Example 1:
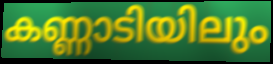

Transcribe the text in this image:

കണ്ണാടിയിലും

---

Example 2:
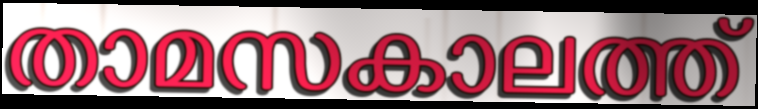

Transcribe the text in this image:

താമസകാലത്ത്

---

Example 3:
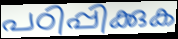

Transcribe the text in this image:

പഠിപ്പിക്കുക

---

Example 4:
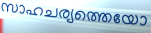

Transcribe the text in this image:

സാഹചര്യത്തെയോ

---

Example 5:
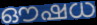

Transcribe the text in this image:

ഔഷധ